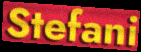
Stefani